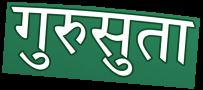
गुरुसुता